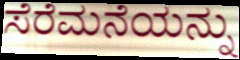
ಸೆರೆಮನೆಯನ್ನು